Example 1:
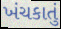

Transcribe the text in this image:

ખંચકાતું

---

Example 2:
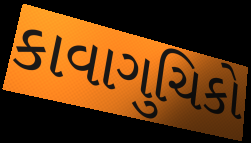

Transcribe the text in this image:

કાવાગુચિકો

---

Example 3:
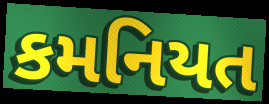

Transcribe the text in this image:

કમનિયત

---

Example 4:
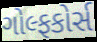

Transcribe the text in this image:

ગોલ્ફકોર્સ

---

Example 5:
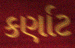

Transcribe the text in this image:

કર્ણાટ